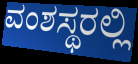
ವಂಶಸ್ಥರಲ್ಲಿ